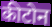
कीटोन